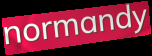
normandy